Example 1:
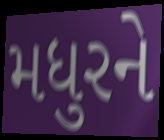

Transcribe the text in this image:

મધુરને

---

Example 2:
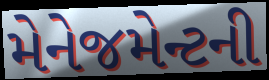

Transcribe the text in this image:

મેનેજમેન્ટની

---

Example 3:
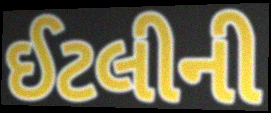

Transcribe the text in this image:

ઈટલીની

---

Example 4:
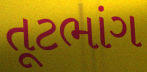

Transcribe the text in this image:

તૂટભાંગ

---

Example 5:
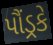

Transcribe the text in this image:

પૌંડ્રકે